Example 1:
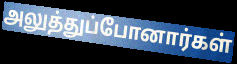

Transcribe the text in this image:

அலுத்துப்போனார்கள்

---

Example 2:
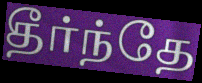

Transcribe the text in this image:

தீர்ந்தே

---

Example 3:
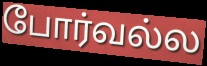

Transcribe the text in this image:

போர்வல்ல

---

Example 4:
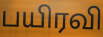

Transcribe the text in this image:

பயிரவி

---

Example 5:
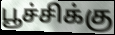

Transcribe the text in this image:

பூச்சிக்கு